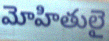
మోహితులై